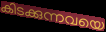
കിടക്കുന്നവയെ